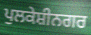
ਪੁਲਕੇਸ਼ੀਨਗਰ